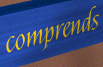
comprends